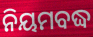
ନିୟମବଦ୍ଧ